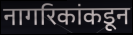
नागरिकांकडून